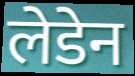
लेडेन